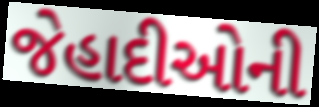
જેહાદીઓની